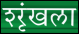
श्रृंखला